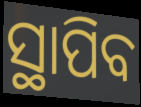
ସ୍ଥାପିବ